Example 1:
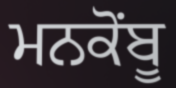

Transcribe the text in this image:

ਮਨਕੋਂਬੂ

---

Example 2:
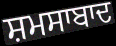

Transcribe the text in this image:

ਸ਼ਮਸਾਬਾਦ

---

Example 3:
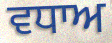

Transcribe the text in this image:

ਵਧਾਅ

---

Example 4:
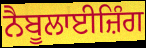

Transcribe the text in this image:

ਨੈਬੂਲਾਈਜ਼ਿੰਗ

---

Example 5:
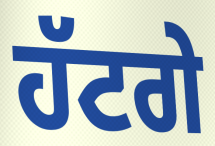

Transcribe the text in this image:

ਹੱਟਗੇ